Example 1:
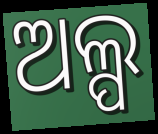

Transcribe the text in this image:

ଅଲ୍ପ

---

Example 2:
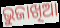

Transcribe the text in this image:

ଭୁଜାଖିଆ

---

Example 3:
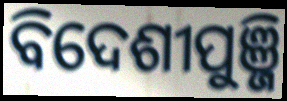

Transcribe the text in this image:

ବିଦେଶୀପୁଞ୍ଜି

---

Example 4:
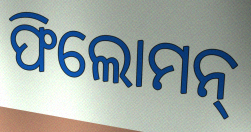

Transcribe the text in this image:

ଫିଲୋମନ୍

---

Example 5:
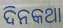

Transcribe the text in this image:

ଦିନକଥା